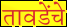
तावडेंचे